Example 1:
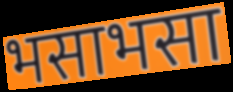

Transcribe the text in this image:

भसाभसा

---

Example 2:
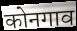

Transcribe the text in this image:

कोनगाव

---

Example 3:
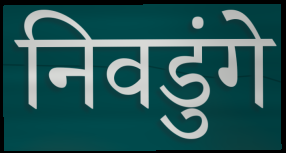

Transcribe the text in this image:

निवडुंगे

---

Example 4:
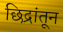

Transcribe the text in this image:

छिद्रांतून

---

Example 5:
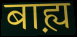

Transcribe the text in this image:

बाह्य़